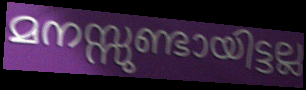
മനസ്സുണ്ടായിട്ടല്ല